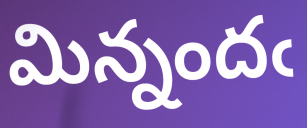
మిన్నందఁ